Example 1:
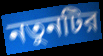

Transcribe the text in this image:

নতুনটির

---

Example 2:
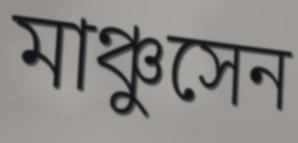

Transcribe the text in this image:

মাঞ্চুসেন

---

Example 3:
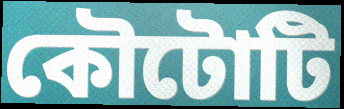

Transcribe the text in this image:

কৌটোটি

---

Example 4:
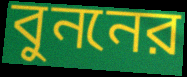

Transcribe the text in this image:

বুননের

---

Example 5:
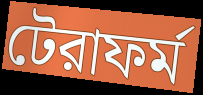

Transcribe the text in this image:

টেরাফর্ম